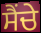
ਸੈਂਚੇ